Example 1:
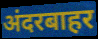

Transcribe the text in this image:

अंदरबाहर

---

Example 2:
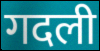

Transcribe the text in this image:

गदली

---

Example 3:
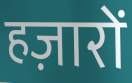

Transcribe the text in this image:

हज़ारों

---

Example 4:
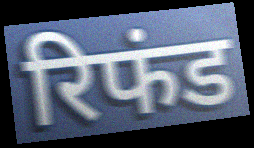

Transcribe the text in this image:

रिफंड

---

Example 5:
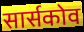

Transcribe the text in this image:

सार्सकोव